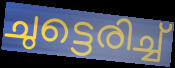
ചുട്ടെരിച്ച്